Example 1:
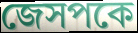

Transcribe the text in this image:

জেসপকে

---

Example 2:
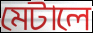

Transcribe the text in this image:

মেটালে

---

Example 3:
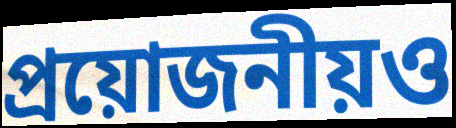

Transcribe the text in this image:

প্রয়োজনীয়ও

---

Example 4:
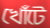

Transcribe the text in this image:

খোঁটে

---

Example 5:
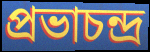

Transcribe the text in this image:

প্রভাচন্দ্র